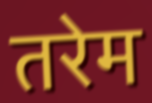
तरेम